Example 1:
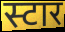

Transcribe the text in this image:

स्टार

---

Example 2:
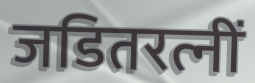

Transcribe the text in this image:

जडितरत्नीं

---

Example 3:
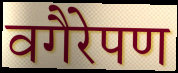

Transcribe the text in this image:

वगैरेपण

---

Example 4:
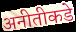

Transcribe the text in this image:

अनीतीकडे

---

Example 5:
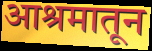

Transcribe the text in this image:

आश्रमातून